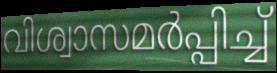
വിശ്വാസമർപ്പിച്ച്